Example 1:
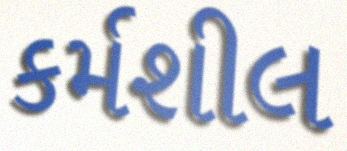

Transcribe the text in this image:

કર્મશીલ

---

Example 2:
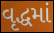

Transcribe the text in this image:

વૃદ્ધમાં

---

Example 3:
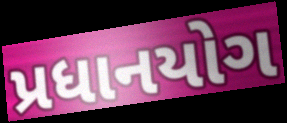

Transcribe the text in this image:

પ્રધાનયોગ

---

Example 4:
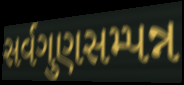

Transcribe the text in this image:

સર્વગુણસમ્પન્ન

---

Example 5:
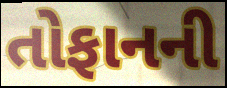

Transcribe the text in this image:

તોફાનની